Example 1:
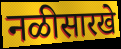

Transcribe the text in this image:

नळीसारखे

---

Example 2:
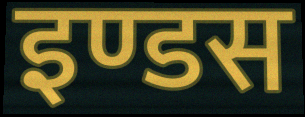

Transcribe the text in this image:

इण्डस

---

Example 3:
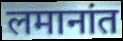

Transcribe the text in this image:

लमानांत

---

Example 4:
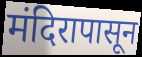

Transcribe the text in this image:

मंदिरापासून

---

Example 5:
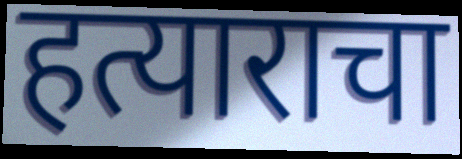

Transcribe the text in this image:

हत्याराचा